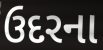
ઉદરના